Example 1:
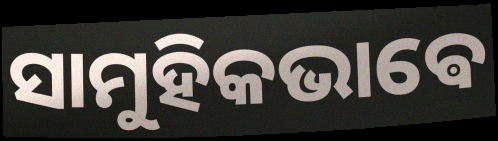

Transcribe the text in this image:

ସାମୁହିକଭାଵେ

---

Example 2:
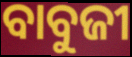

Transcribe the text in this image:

ବାବୁଜୀ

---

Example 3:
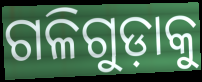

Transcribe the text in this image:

ଗଳିଗୁଡ଼ାକୁ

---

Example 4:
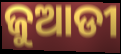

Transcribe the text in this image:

ଜୁଆଡୀ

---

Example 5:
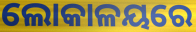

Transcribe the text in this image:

ଲୋକାଳୟରେ